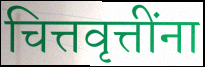
चित्तवृत्तींना